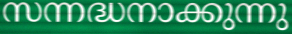
സന്നദ്ധനാക്കുന്നു